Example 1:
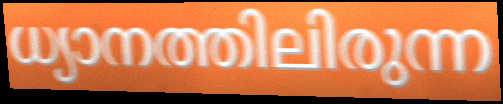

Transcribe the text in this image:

ധ്യാനത്തിലിരുന്ന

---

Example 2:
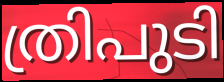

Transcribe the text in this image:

ത്രിപുടി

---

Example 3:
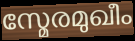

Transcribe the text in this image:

സ്മേരമുഖീം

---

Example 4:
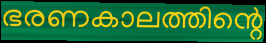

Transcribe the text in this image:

ഭരണകാലത്തിന്റെ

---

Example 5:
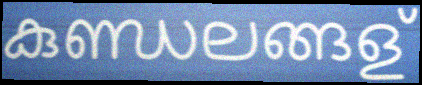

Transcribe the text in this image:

കുണ്ഡലങ്ങള്